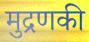
मुद्रणकी